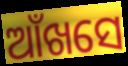
ଆଁଖସେ